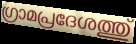
ഗ്രാമപ്രദേശത്തു്